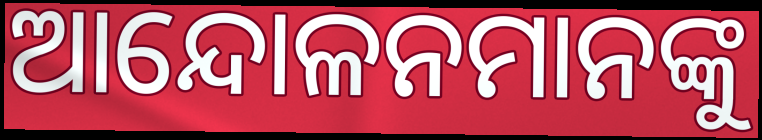
ଆନ୍ଦୋଳନମାନଙ୍କୁ